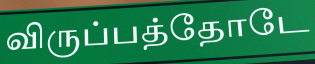
விருப்பத்தோடே